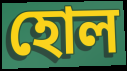
হোল